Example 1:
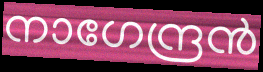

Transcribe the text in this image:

നാഗേന്ദ്രൻ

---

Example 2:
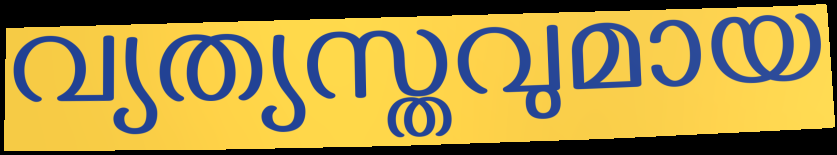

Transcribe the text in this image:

വ്യത്യസ്തവുമായ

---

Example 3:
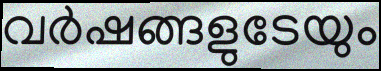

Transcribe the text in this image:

വർഷങ്ങളുടേയും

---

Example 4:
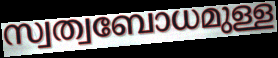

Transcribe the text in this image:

സ്വത്വബോധമുള്ള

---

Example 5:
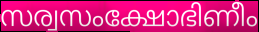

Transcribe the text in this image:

സര്വസംക്ഷോഭിണീം